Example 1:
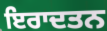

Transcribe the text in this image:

ਇਰਾਦਤਨ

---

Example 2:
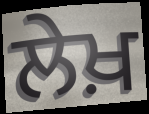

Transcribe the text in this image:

ਲੇਖ਼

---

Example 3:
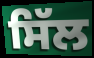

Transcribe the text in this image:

ਸਿੱਲ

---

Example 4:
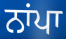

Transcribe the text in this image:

ਨਾਂਪਾ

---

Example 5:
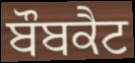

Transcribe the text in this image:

ਬੌਬਕੈਟ